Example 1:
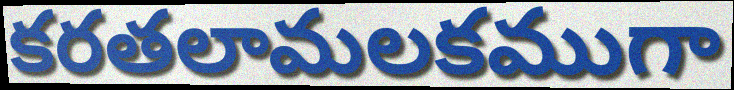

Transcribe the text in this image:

కరతలామలకముగా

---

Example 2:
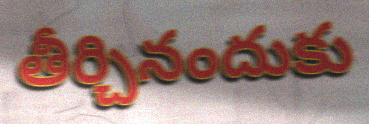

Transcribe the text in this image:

తీర్చినందుకు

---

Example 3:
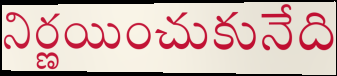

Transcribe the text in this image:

నిర్ణయించుకునేది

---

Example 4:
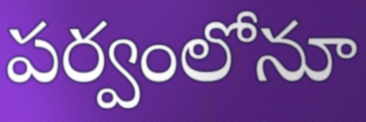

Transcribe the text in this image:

పర్వంలోనూ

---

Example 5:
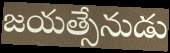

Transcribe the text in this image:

జయత్సేనుడు